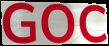
GOC